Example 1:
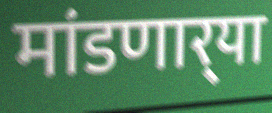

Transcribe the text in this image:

मांडणार्‍या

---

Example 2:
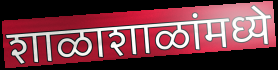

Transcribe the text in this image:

शाळाशाळांमध्ये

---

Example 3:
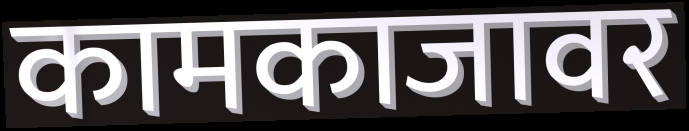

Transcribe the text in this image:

कामकाजावर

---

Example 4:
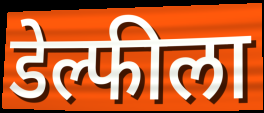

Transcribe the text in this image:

डेल्फीला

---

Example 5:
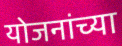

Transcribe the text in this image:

योजनांच्या